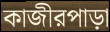
কাজীরপাড়া